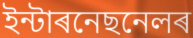
ইন্টাৰনেছনেলৰ